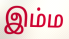
இம்ம